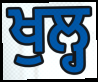
ਖੁਲ੍ਹ